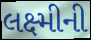
લક્ષ્મીની